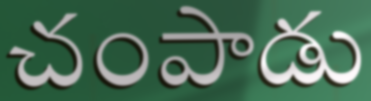
చంపాడు